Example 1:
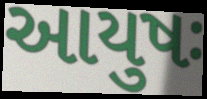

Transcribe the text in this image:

આયુષઃ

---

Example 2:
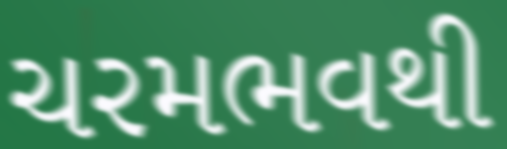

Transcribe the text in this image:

ચરમભવથી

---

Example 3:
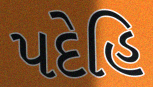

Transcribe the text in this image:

પદેહિ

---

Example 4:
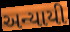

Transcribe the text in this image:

અન્યાયી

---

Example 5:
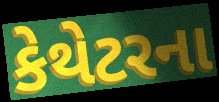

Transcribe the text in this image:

કેથેટરના